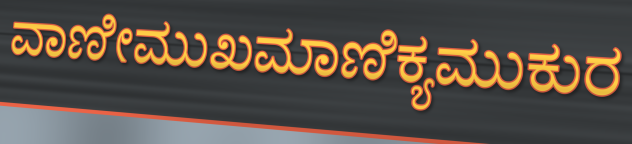
ವಾಣೀಮುಖಮಾಣಿಕ್ಯಮುಕುರ